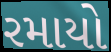
રમાયો